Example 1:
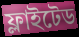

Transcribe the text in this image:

ফ্লাইটেড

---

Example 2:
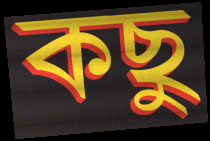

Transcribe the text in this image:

কছু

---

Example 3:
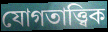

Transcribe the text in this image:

যোগতাত্ত্বিক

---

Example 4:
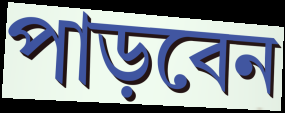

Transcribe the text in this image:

পাড়বেন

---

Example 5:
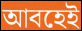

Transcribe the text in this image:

আবহেই